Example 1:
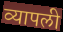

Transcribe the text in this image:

व्यापली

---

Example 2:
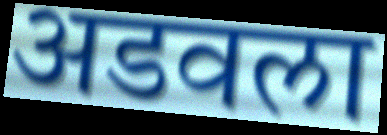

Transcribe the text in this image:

अडवला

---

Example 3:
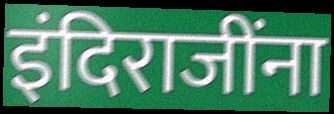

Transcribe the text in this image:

इंदिराजींना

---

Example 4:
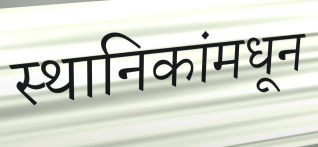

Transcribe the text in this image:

स्थानिकांमधून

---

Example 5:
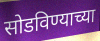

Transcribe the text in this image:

सोडविण्याच्या